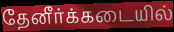
தேனீர்க்கடையில்